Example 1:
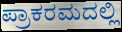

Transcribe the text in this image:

ಪ್ರಾಕರಮದಲ್ಲಿ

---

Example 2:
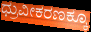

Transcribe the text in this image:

ಧ್ರುವೀಕರಣಕ್ಕೂ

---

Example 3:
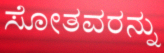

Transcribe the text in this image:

ಸೋತವರನ್ನು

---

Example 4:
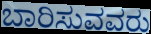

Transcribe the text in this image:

ಬಾರಿಸುವವರು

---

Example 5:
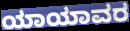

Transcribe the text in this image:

ಯಾಯಾವರ